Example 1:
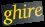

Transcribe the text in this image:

ghire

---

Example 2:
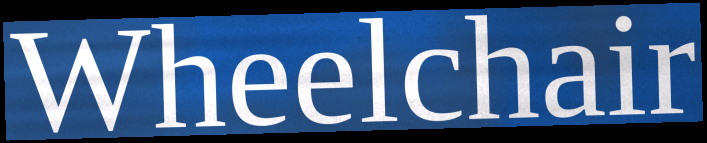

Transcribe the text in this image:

Wheelchair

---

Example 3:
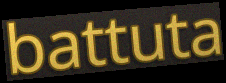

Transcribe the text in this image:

battuta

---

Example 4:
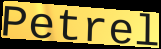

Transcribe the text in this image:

Petrel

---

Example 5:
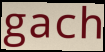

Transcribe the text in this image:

gach